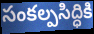
సంకల్పసిద్ధికి